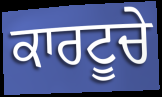
ਕਾਰਟੂਚੇ